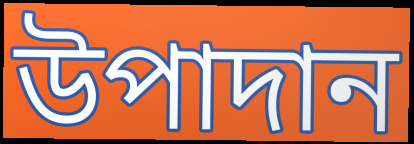
উপাদান